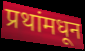
प्रथांमधून